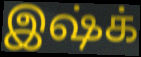
இஷ்க்